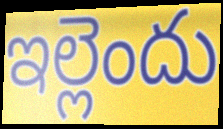
ఇల్లెందు